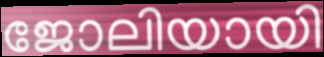
ജോലിയായി